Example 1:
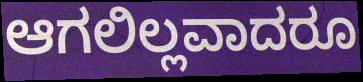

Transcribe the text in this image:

ಆಗಲಿಲ್ಲವಾದರೂ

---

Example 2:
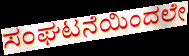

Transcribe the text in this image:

ಸಂಘಟನೆಯಿಂದಲೇ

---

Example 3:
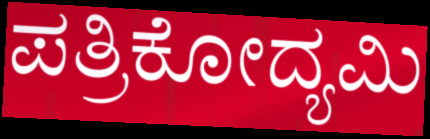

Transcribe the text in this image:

ಪತ್ರಿಕೋದ್ಯಮಿ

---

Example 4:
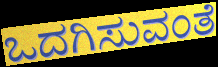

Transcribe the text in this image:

ಒದಗಿಸುವಂತೆ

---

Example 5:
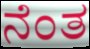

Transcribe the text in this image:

ನೆಂತ